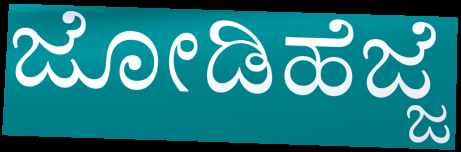
ಜೋಡಿಹೆಜ್ಜೆ